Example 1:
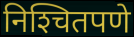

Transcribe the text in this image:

निश्‍चितपणे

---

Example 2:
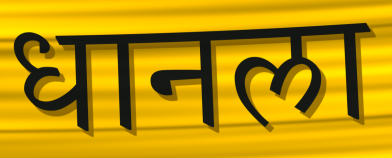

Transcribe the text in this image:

धानला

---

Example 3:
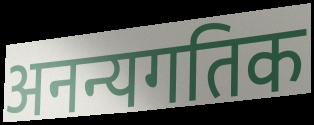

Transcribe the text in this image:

अनन्यगतिक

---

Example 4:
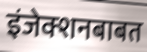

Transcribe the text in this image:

इंजेक्शनबाबत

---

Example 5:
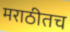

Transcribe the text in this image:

मराठीतच